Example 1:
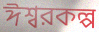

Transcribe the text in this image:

ঈশ্বরকল্প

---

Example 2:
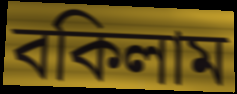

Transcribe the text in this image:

বকিলাম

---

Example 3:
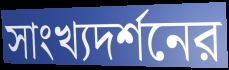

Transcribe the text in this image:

সাংখ্যদর্শনের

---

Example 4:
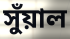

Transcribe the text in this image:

সুঁয়াল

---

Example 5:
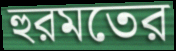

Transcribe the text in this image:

হুরমতের